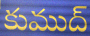
కుముద్